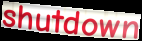
shutdown